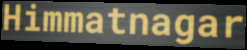
Himmatnagar